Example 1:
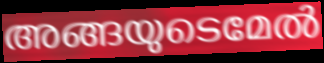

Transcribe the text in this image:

അങ്ങയുടെമേൽ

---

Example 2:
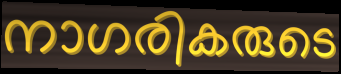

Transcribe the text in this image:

നാഗരികരുടെ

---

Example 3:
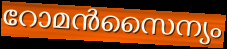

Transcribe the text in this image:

റോമൻസൈന്യം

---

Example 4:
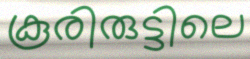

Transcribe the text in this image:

കൂരിരുട്ടിലെ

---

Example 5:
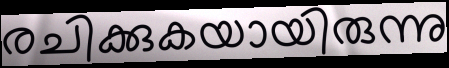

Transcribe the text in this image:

രചിക്കുകയായിരുന്നു